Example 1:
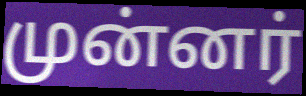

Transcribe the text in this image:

முன்னர்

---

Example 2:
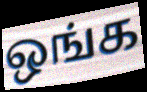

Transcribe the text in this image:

ஒங்க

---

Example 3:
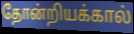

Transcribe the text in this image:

தோன்றியக்கால்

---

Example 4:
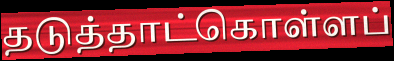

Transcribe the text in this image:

தடுத்தாட்கொள்ளப்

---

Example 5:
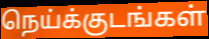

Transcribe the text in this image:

நெய்க்குடங்கள்